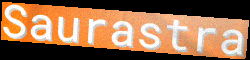
Saurastra